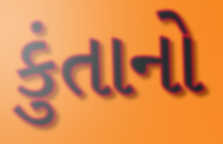
કુંતાનો